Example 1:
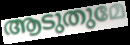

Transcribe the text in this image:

ആടുതുമേ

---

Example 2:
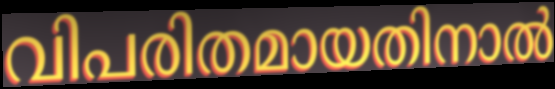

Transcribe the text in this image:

വിപരിതമായതിനാൽ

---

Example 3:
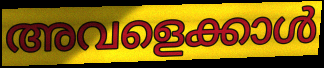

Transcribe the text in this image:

അവളെക്കാൾ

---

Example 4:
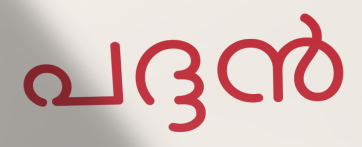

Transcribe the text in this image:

പദ്ദൻ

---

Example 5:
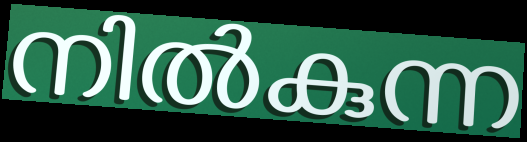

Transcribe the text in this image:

നിൽകുന്ന